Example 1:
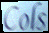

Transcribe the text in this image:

Cols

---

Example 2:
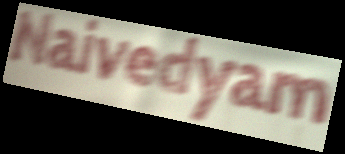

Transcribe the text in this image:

Naivedyam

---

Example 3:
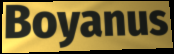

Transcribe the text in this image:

Boyanus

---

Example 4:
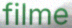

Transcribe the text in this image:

filme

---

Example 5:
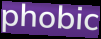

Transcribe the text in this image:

phobic